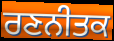
ਰਣਨੀਤਕ